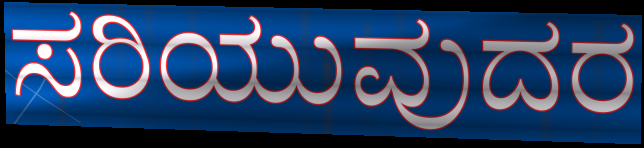
ಸರಿಯುವುದರ